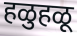
हळुहळू